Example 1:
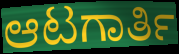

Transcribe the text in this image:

ಆಟಗಾರ್ತಿ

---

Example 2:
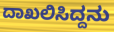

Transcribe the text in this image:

ದಾಖಲಿಸಿದ್ದನು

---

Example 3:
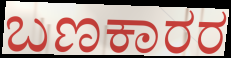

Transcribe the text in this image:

ಬಣಕಾರರ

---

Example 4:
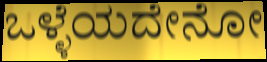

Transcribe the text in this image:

ಒಳ್ಳೆಯದೇನೋ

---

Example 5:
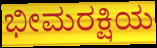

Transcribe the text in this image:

ಭೀಮರಕ್ಷಿಯ